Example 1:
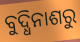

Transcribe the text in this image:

ବୁଦ୍ଧିନାଶରୁ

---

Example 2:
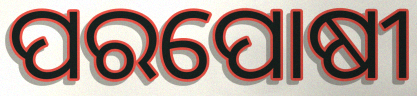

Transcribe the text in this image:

ପରପୋଷୀ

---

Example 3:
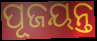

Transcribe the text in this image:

ପୂଜୟନ୍ତ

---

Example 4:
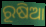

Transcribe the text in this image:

ରୂଷିଆ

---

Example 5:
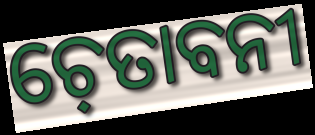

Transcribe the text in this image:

ଚ଼େତାବନୀ